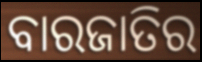
ବାରଜାତିର